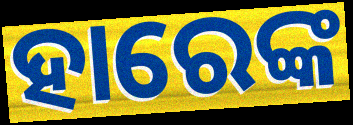
ହାରେଙ୍କ